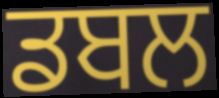
ਡਬਲ